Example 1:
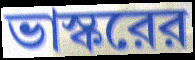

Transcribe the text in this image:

ভাস্করের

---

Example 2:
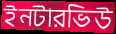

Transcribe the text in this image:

ইনটারভিউ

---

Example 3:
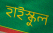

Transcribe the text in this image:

হাইস্কুল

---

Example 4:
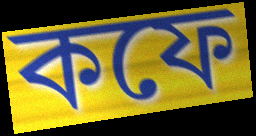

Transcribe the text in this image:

কফে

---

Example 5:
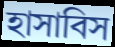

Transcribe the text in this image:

হাসাবিস